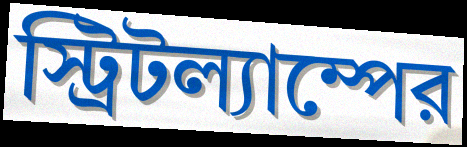
স্ট্রিটল্যাম্পের